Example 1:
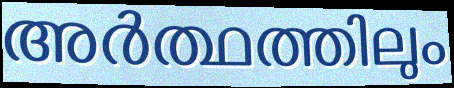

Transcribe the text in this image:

അർത്ഥത്തിലും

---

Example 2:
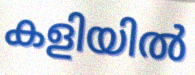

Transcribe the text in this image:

കളിയിൽ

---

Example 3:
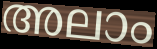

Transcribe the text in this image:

അലാം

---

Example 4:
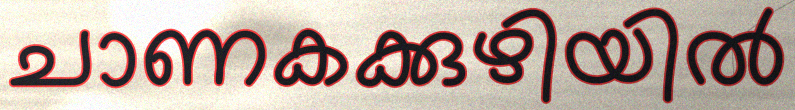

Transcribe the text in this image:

ചാണകക്കുഴിയിൽ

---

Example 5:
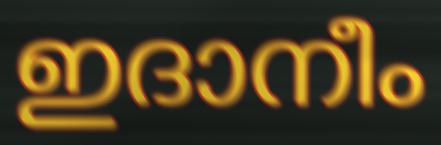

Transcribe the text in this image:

ഇദാനീം